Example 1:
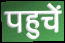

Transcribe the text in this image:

पहुचें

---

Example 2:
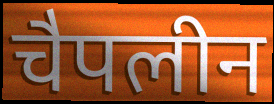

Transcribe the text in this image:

चैपलीन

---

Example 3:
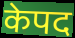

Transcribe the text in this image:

केपद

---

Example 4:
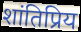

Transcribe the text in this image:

शांतिप्रिय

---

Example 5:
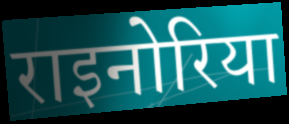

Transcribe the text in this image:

राइनोरिया